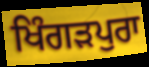
ਖਿੰਗੜਪੁਰਾ